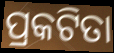
ପ୍ରକଟିତା